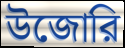
উজোরি